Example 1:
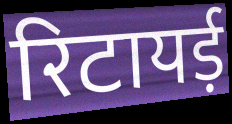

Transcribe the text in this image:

रिटायर्ड़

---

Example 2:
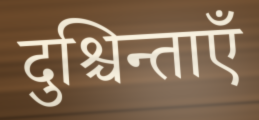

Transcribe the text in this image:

दुश्चिन्ताएँ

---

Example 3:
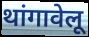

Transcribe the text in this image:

थांगावेलू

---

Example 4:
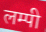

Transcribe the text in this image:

लम्पी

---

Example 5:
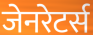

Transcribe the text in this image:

जेनरेटर्स